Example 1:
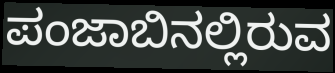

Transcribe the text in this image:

ಪಂಜಾಬಿನಲ್ಲಿರುವ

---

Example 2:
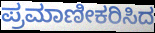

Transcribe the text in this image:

ಪ್ರಮಾಣೀಕರಿಸಿದ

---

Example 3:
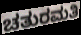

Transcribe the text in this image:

ಚತುರಮತಿ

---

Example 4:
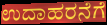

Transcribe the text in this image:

ಉದಾಹರನೆಗೆ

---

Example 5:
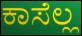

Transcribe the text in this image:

ಕಾಸೆಲ್ಲ